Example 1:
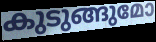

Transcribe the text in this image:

കുടുങ്ങുമോ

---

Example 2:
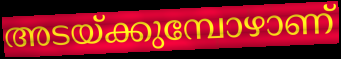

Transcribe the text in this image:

അടയ്ക്കുമ്പോഴാണ്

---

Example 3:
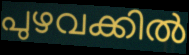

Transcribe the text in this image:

പുഴവക്കിൽ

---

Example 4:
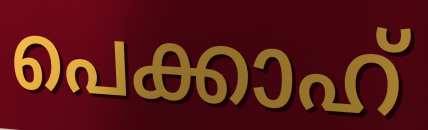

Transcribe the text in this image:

പെക്കാഹ്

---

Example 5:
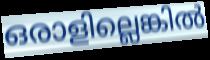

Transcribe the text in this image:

ഒരാളില്ലെങ്കിൽ